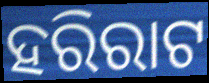
ହରିରାଟ